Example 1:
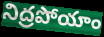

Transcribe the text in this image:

నిద్రపోయాం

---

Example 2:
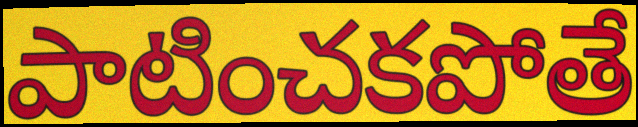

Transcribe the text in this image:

పాటించకపోతే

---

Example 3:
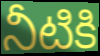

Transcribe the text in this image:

నీటికి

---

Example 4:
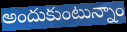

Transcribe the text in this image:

అందుకుంటున్నాం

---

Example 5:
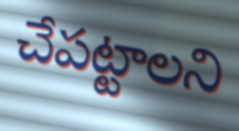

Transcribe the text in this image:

చేపట్టాలని